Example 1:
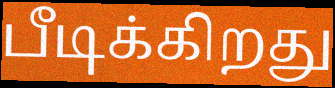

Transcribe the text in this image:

பீடிக்கிறது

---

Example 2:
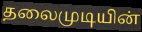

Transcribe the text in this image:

தலைமுடியின்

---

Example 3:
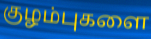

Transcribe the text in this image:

குழம்புகளை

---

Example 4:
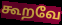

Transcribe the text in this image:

கூறவே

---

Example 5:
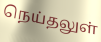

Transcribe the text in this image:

நெய்தலுள்